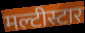
मल्टीस्टार